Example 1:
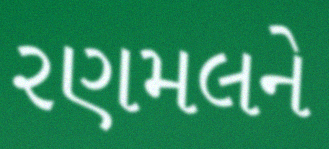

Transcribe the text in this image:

રણમલને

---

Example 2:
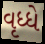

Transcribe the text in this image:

વૃધ્ધે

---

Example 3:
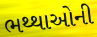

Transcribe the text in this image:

ભથ્થાઓની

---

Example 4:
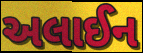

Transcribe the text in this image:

અલાઈન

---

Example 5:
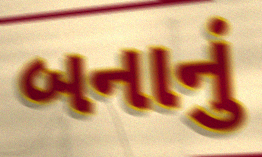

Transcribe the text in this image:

બનાનું